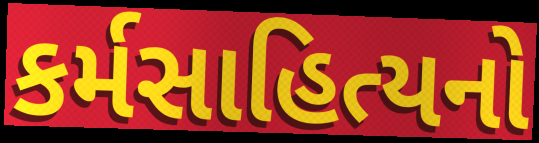
કર્મસાહિત્યનો